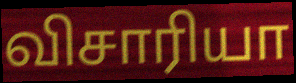
விசாரியா